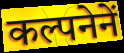
कल्पनेनें